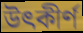
উৎকীর্ণ